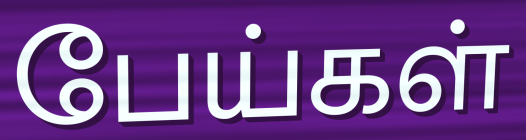
பேய்கள்